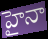
హైనా